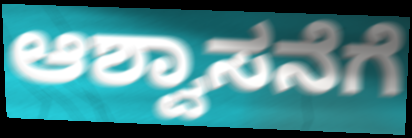
ಆಶ್ವಾಸನೆಗೆ